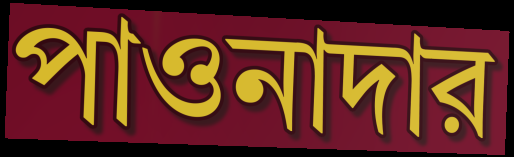
পাওনাদার